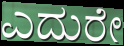
ಎದುರೇ